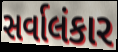
સર્વાલંકાર